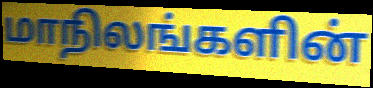
மாநிலங்களின்